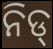
ନିଡ୍